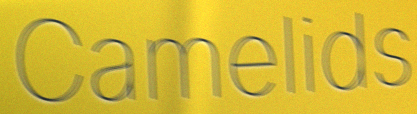
Camelids